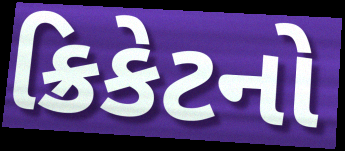
ક્રિકેટનો